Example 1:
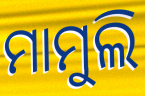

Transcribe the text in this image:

ମାମୁଲି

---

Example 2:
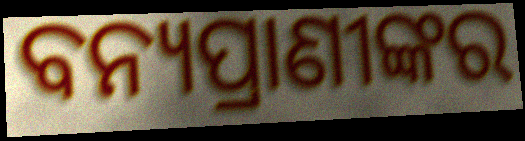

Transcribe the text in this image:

ବନ୍ୟପ୍ରାଣୀଙ୍କର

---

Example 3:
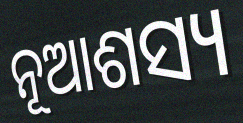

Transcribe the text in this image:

ନୂଆଶସ୍ୟ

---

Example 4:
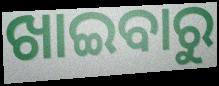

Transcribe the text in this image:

ଖାଇବାରୁ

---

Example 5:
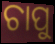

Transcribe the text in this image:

ଚାପୁ